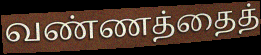
வண்ணத்தைத்